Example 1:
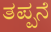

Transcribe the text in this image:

ತಪ್ಪನೆ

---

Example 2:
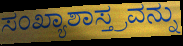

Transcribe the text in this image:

ಸಂಖ್ಯಾಶಾಸ್ತ್ರವನ್ನು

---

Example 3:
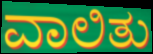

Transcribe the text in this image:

ವಾಲಿತು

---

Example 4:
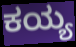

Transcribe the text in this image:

ಕಯ್ಯ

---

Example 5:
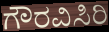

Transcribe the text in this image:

ಗೌರವಿಸಿರಿ